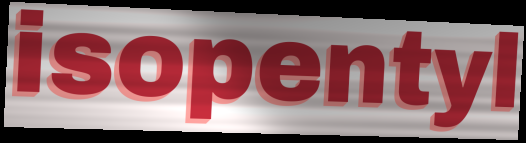
isopentyl